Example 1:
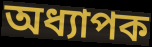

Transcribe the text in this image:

অধ্যাপক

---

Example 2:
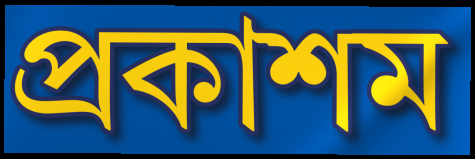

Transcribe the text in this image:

প্ৰকাশম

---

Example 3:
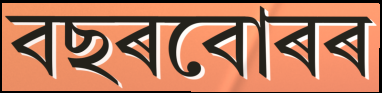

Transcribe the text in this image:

বছৰবোৰৰ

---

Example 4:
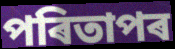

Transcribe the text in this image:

পৰিতাপৰ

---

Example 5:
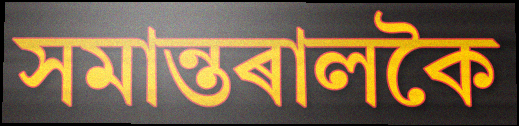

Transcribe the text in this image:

সমান্তৰালকৈ